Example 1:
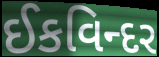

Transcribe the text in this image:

ઈકવિન્દર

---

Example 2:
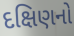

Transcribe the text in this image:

દક્ષિણનો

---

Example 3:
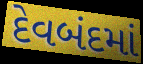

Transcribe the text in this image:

દેવબંદમાં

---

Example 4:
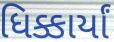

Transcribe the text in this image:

ધિક્કાર્યાં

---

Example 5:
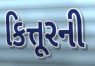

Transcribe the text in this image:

કિત્તૂરની